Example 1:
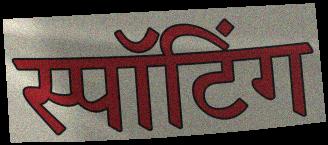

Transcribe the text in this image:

स्पॉटिंग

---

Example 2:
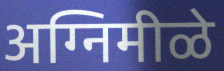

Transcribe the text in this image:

अग्निमीळे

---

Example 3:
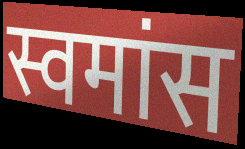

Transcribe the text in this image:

स्वमांस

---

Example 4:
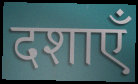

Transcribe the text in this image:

दशाएँ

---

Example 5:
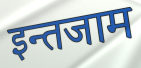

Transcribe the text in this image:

इन्तजाम